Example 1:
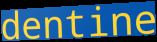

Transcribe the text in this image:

dentine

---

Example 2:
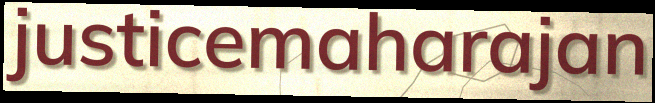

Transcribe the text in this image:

justicemaharajan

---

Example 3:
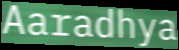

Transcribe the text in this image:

Aaradhya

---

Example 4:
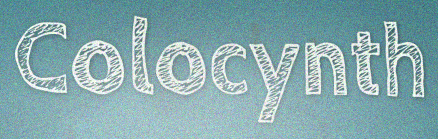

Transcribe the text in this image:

Colocynth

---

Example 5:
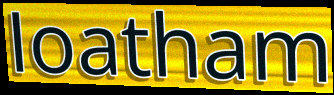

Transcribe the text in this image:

Ioatham